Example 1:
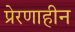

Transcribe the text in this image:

प्रेरणाहीन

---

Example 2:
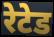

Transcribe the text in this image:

रेटेड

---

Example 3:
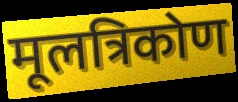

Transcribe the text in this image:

मूलत्रिकोण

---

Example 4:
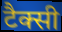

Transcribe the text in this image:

टैक्‍सी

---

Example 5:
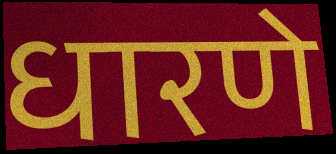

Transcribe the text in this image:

धारणे